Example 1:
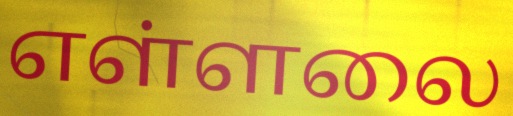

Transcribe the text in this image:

எள்ளலை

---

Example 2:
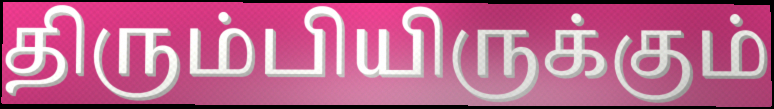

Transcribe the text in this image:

திரும்பியிருக்கும்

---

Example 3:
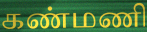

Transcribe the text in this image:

கண்மணி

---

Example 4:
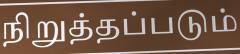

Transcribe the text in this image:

நிறுத்தப்படும்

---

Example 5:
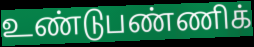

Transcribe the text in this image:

உண்டுபண்ணிக்